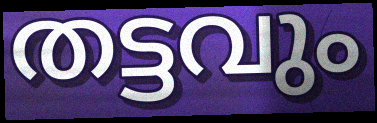
തട്ടവും